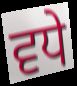
ਵਧੇ